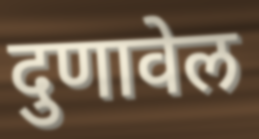
दुणावेल